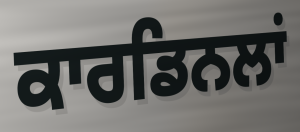
ਕਾਰਡਿਨਲਾਂ